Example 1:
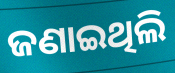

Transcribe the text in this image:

ଜଣାଇଥିଲି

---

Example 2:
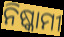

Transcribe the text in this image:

ନିଷ୍କାମୀ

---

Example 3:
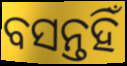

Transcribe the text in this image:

ବସନ୍ତହିଁ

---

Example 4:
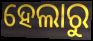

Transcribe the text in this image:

ହେଲାରୁ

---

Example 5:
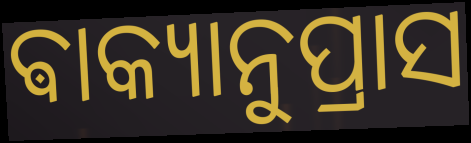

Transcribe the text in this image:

ଵାକ୍ୟାନୁପ୍ରାସ